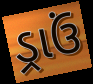
ડ્રાઉં